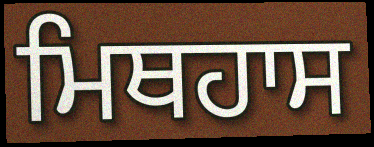
ਮਿਥਹਾਸ